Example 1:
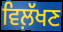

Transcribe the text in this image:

ਵਿਲ਼ੱਖਣ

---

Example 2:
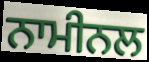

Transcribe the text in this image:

ਨਾਮੀਨਲ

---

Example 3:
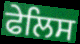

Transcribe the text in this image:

ਫੇਲਿਸ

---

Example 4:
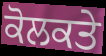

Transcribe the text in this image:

ਕੋਲਕਤੇ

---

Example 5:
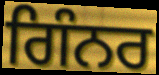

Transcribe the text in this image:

ਗਿੰਨਰ